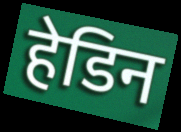
हेडिन